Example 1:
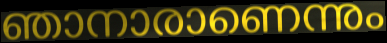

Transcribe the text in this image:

ഞാനാരാണെന്നും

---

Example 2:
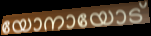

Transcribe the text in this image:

യോനായോട്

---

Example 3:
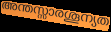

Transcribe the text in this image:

അന്തസ്സാരശൂന്യത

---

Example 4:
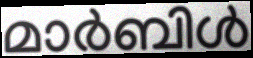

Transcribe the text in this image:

മാർബിൾ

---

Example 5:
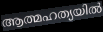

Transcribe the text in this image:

ആത്മഹത്യയിൽ